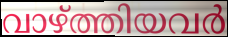
വാഴ്ത്തിയവർ